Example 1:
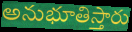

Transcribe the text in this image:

అనుభూతిస్తారు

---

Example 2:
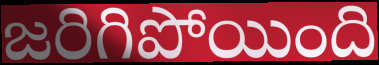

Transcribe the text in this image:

జరిగిపోయింది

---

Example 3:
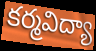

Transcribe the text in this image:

కర్మవిద్యా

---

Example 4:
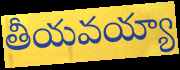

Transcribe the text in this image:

తీయవయ్యా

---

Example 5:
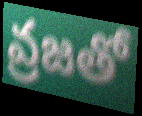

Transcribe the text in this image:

వ్రజతో